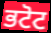
ਭਟੋਟ